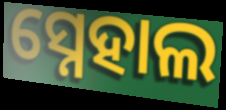
ସ୍ନେହାଲ